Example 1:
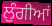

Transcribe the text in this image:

ਲੁੰਗੀਆਂ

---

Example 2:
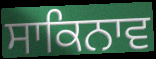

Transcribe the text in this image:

ਸਾਕਿਨਾਵ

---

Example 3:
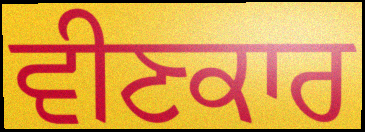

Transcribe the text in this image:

ਵੀਣਕਾਰ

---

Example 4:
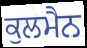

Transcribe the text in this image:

ਕੁਲਮੈਨ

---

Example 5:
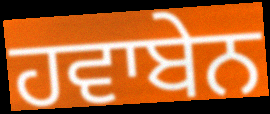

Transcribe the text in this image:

ਹਵਾਬੇਨ